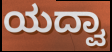
ಯದ್ವಾ